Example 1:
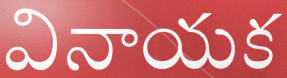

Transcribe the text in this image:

వినాయక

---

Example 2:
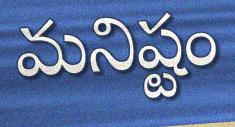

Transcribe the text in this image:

మనిష్టం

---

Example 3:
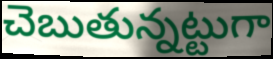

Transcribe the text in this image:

చెబుతున్నట్టుగా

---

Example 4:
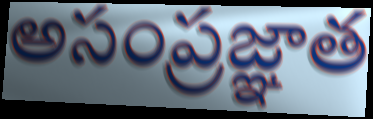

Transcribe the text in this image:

అసంప్రజ్ఞాత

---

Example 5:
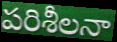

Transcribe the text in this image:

పరిశీలనా